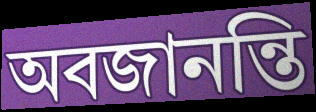
অবজানন্তি